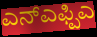
ಎನ್ಎಫ್ಪಿಎ